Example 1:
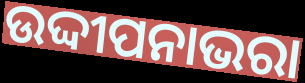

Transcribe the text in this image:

ଉଦ୍ଦୀପନାଭରା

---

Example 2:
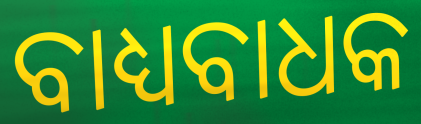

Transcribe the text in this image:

ବାଧ୍ୟବାଧକ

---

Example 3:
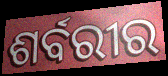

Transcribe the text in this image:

ଶର୍ବରୀର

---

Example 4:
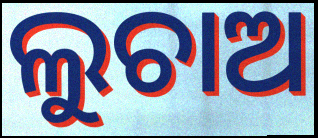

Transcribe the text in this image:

ଲୁଚାଅ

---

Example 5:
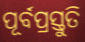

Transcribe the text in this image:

ପୂର୍ବପ୍ରସ୍ତୁତି